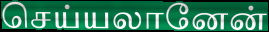
செய்யலானேன்